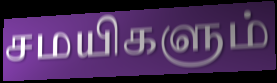
சமயிகளும்